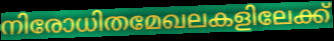
നിരോധിതമേഖലകളിലേക്ക്